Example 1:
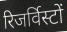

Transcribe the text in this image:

रिजर्विस्टों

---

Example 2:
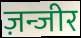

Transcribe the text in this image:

ज़न्जीर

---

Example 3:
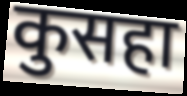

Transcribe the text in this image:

कुसहा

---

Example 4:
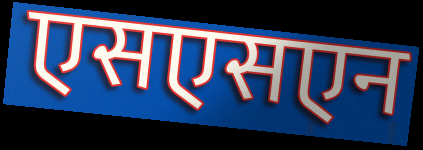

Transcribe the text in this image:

एसएसएन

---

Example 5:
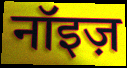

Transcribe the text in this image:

नॉइज़